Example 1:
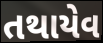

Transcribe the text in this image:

તથાયેવ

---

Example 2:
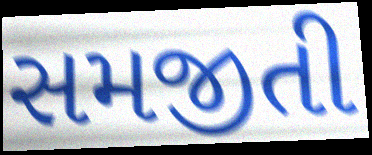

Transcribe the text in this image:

સમજીતી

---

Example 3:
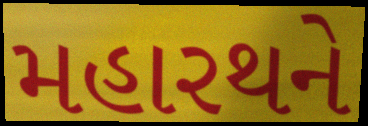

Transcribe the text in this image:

મહારથને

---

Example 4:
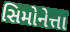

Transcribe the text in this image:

સિમોનેત્તા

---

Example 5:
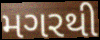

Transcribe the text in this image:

મગરથી